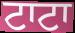
ਟਾਟਾ